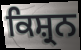
ਕਿਸ਼੍ਰਨ